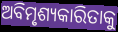
ଅବିମୃଶ୍ୟକାରିତାକୁ